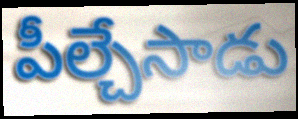
పీల్చేసాడు